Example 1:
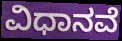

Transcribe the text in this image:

ವಿಧಾನವೆ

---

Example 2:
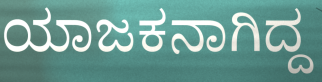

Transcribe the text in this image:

ಯಾಜಕನಾಗಿದ್ದ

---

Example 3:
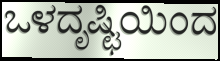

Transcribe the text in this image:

ಒಳದೃಷ್ಟಿಯಿಂದ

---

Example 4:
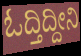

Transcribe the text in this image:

ಓದ್ತಿದ್ದೀನಿ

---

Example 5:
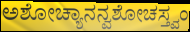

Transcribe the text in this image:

ಅಶೋಚ್ಯಾನನ್ವಶೋಚಸ್ತ್ವಂ